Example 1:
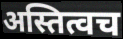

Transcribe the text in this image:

अस्तित्वच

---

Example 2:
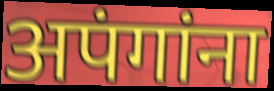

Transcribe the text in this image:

अपंगांना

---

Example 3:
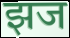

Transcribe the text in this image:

झज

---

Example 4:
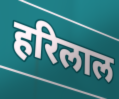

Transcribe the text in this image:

हरिलाल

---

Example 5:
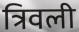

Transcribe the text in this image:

त्रिवली